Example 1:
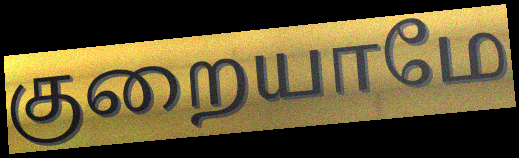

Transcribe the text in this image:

குறையாமே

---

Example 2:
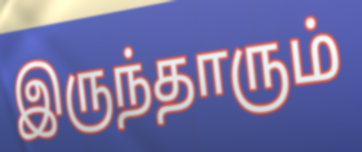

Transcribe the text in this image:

இருந்தாரும்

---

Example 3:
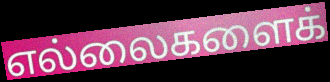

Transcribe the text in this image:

எல்லைகளைக்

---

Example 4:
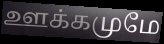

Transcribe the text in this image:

ஊக்கமுமே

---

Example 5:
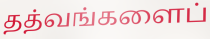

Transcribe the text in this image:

தத்வங்களைப்